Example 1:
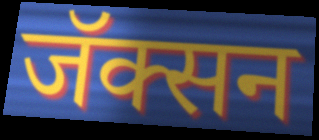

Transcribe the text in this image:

जॅक्सन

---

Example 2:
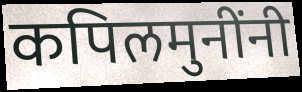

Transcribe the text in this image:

कपिलमुनींनी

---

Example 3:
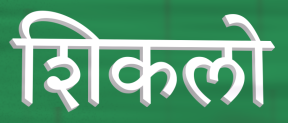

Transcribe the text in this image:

शिकलो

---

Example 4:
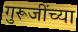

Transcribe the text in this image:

गुरूजींच्या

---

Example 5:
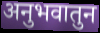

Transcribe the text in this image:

अनुभवातुन